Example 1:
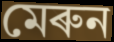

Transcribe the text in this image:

মেৰুন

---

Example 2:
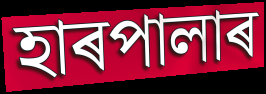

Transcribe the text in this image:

হাৰপালাৰ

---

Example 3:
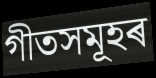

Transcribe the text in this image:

গীতসমূহৰ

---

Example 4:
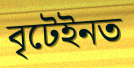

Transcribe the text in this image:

বৃটেইনত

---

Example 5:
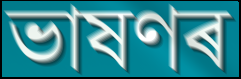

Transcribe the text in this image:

ভাষণৰ